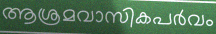
ആശ്രമവാസികപർവം